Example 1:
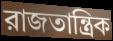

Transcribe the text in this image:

রাজতান্ত্রিক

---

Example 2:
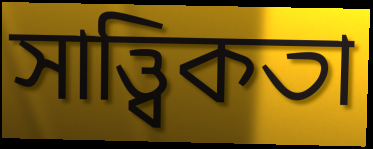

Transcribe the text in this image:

সাত্ত্বিকতা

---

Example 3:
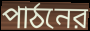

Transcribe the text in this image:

পাঠনের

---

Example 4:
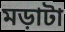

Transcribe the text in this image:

মড়াটা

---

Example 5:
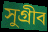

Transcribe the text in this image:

সুগ্রীব